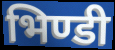
भिण्डी